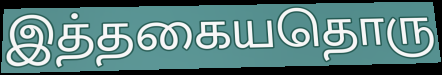
இத்தகையதொரு